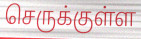
செருக்குள்ள